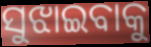
ସୁଝାଇବାକୁ